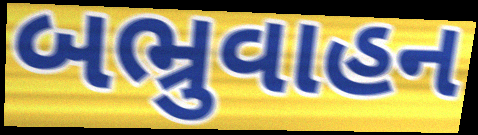
બભ્રુવાહન